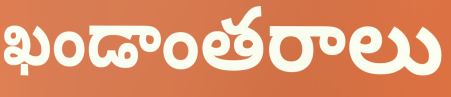
ఖండాంతరాలు